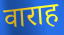
वाराह